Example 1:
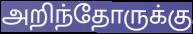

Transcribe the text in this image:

அறிந்தோருக்கு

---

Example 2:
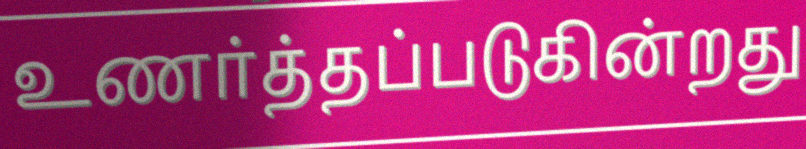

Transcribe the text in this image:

உணர்த்தப்படுகின்றது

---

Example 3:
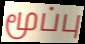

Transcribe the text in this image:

மூப்பு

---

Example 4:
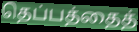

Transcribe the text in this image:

தெப்பத்தைத்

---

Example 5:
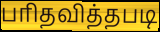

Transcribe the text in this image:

பரிதவித்தபடி